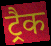
ट्रैक